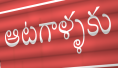
ఆటగాళ్ళకు